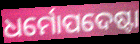
ଧର୍ମୋପଦେଷ୍ଟା